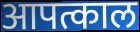
आपत्काल